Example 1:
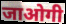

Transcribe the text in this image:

जाओगी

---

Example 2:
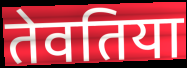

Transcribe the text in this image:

तेवतिया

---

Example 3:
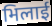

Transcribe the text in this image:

भिलाई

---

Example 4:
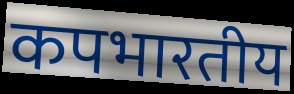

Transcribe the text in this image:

कपभारतीय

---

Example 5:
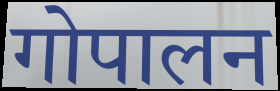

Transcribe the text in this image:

गोपालन